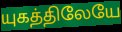
யுகத்திலேயே